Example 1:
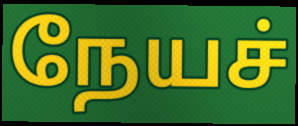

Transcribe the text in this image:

நேயச்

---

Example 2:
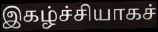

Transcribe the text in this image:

இகழ்ச்சியாகச்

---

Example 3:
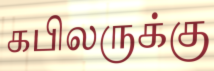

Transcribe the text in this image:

கபிலருக்கு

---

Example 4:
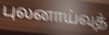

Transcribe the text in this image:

புலனாய்வுத்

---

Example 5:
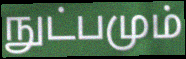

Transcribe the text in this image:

நுட்பமும்